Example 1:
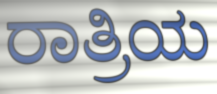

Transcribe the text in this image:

ರಾತ್ರಿಯ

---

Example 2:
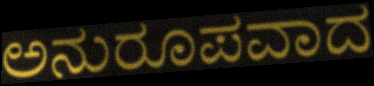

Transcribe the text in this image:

ಅನುರೂಪವಾದ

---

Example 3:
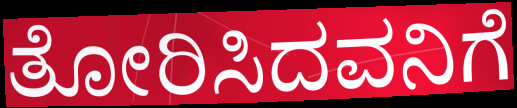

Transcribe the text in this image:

ತೋರಿಸಿದವನಿಗೆ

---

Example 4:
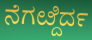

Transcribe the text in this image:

ನೆಗೞ್ದಿರ್ದ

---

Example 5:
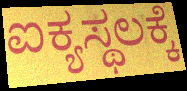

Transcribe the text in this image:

ಐಕ್ಯಸ್ಥಲಕ್ಕೆ